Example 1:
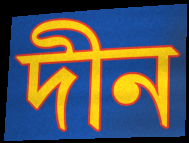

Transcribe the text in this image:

দীন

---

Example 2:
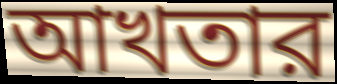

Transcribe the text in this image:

আখতার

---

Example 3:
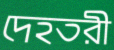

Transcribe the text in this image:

দেহতরী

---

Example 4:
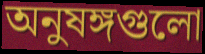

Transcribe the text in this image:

অনুষঙ্গগুলো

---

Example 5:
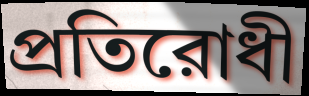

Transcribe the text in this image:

প্রতিরোধী